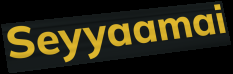
Seyyaamai